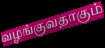
வழங்குவதாகும்